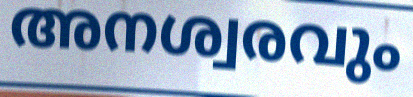
അനശ്വരവും